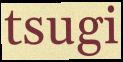
tsugi